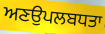
ਅਣਉਪਲਬਧਤਾ